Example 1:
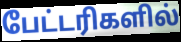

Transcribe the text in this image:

பேட்டரிகளில்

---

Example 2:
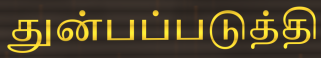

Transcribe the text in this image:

துன்பப்படுத்தி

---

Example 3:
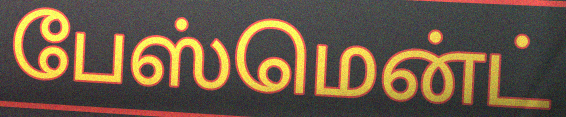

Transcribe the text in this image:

பேஸ்மென்ட்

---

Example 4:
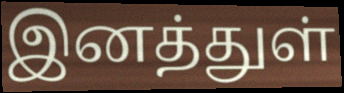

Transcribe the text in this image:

இனத்துள்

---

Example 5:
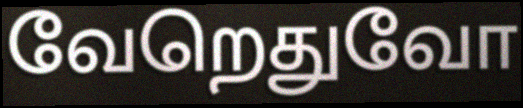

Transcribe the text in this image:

வேறெதுவோ